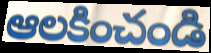
ఆలకించండి